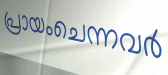
പ്രായംചെന്നവർ